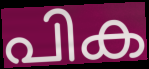
പിക